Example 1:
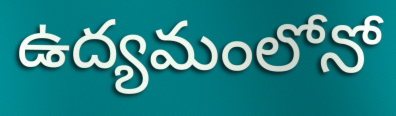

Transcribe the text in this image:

ఉద్యమంలోనో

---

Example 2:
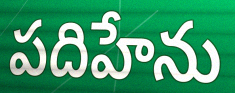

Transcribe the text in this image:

పదిహేను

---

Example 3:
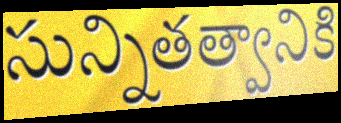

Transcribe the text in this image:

సున్నితత్వానికి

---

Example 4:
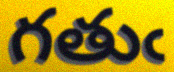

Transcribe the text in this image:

గతుఁ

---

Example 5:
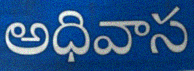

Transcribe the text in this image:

అధివాస